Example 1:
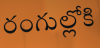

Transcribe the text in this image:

రంగుల్లోకి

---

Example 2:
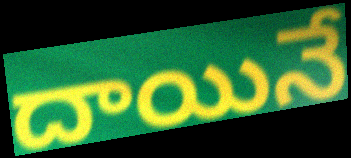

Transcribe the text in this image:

దాయినే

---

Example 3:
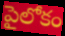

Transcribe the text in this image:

పైలోకం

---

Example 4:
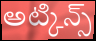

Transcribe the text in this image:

అట్కిన్స్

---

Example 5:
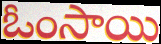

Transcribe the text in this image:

ఓంసాయి